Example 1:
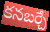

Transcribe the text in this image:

కనబర్చే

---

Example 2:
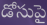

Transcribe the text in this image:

డోసుపై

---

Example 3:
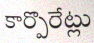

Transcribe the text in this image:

కార్పొరేట్లు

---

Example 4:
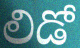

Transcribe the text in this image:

లిడో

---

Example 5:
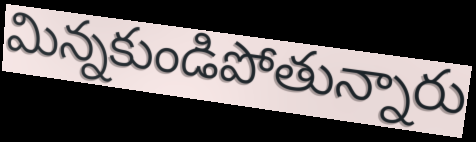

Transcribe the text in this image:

మిన్నకుండిపోతున్నారు